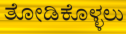
ತೋಡಿಕೊಳ್ಳಲು